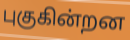
புகுகின்றன